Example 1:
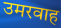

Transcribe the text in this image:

उमरवाह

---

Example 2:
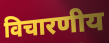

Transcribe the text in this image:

विचारणीय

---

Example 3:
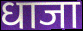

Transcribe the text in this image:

धाजा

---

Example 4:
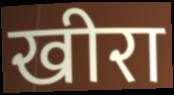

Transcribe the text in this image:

खीरा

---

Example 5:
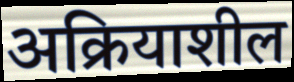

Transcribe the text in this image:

अक्रियाशील